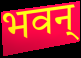
भवन्